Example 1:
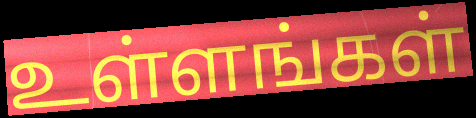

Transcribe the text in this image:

உள்ளங்கள்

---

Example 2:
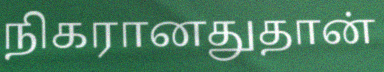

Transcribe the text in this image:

நிகரானதுதான்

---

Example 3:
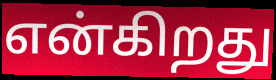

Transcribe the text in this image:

என்கிறது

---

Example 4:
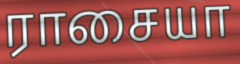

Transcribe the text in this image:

ராசையா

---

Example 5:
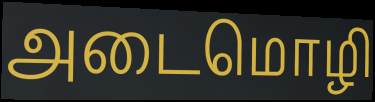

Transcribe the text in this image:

அடைமொழி